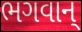
ભગવાન્